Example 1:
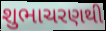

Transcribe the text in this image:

શુભાચરણથી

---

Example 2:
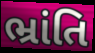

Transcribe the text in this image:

ભ્રાંતિ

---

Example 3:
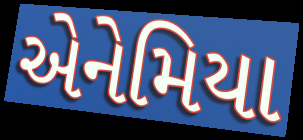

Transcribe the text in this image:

એનેમિયા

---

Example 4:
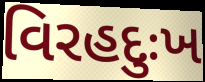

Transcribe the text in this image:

વિરહદુઃખ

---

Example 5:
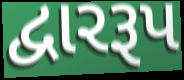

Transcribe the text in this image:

દ્વારરૂપ